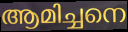
ആമിച്ചനെ